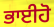
ਭਾਈਹੋ